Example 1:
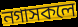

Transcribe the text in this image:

নগাসকলে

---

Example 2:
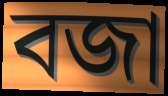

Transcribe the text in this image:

বজা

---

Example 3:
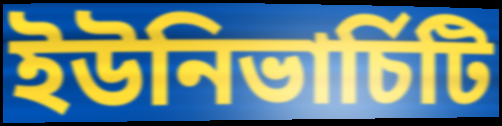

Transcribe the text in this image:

ইউনিভাৰ্চিটি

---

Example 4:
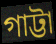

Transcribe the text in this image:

গাট্টা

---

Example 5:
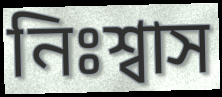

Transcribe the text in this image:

নিঃশ্বাস